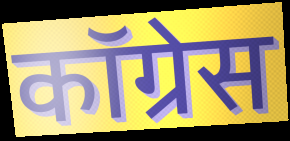
कॉग्रेस